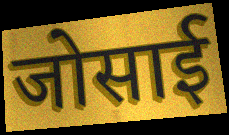
जोसाई